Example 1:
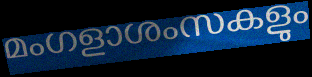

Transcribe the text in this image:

മംഗളാശംസകളും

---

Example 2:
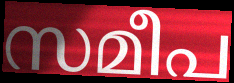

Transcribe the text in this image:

സമീപ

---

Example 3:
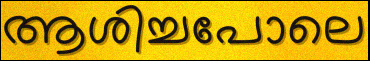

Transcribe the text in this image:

ആശിച്ചപോലെ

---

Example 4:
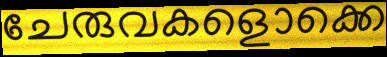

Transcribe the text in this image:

ചേരുവകളൊക്കെ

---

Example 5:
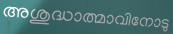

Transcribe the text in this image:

അശുദ്ധാത്മാവിനോടു